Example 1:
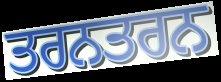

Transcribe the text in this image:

ਤਰਨਤਰਨ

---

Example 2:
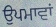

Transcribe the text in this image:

ਉਪਮਾਵਾਂ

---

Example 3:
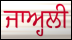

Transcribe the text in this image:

ਜਾਅ੍ਹਲੀ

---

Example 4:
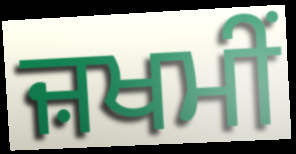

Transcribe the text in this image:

ਜ਼ਖਮੀਂ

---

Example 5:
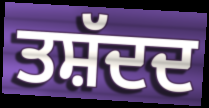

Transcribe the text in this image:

ਤਸ਼ੱਦਦ